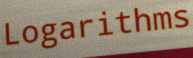
Logarithms